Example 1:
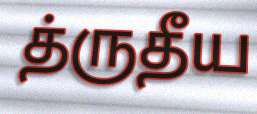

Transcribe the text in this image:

த்ருதீய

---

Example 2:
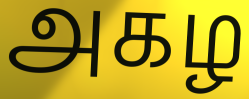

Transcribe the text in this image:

அகழ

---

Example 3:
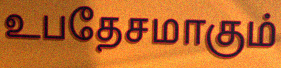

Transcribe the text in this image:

உபதேசமாகும்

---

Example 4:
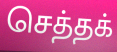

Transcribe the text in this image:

செத்தக்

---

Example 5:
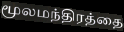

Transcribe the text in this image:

மூலமந்திரத்தை